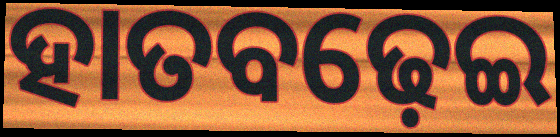
ହାତବଢ଼େଇ